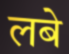
लबे